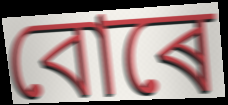
বোৰে